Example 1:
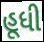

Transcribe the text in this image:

હૂધી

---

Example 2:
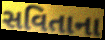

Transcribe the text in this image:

સવિતાના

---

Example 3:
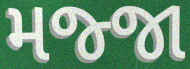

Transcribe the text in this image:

મજ્જા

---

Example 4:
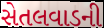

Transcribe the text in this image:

સેતલવાડની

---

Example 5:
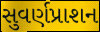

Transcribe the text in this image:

સુવર્ણપ્રાશન